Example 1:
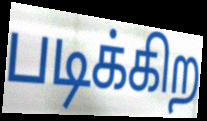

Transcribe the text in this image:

படிக்கிற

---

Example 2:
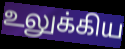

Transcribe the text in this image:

உலுக்கிய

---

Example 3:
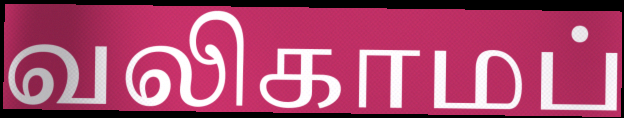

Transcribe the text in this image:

வலிகாமப்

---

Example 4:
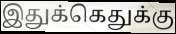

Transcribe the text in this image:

இதுக்கெதுக்கு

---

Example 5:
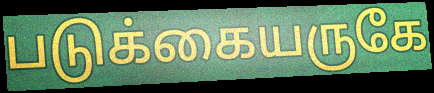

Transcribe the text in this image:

படுக்கையருகே